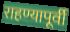
राहण्यापूर्वी